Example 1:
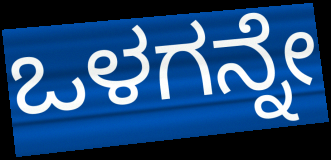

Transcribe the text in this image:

ಒಳಗನ್ನೇ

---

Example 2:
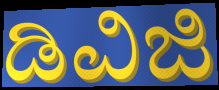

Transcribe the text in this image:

ಡಿವಿಜಿ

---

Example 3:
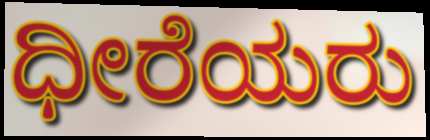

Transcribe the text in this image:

ಧೀರೆಯರು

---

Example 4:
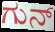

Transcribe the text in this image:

ಗುನ್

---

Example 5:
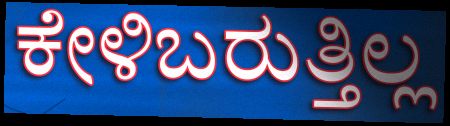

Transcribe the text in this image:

ಕೇಳಿಬರುತ್ತಿಲ್ಲ